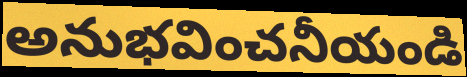
అనుభవించనీయండి